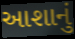
આશાનું